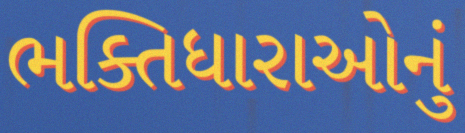
ભક્તિધારાઓનું